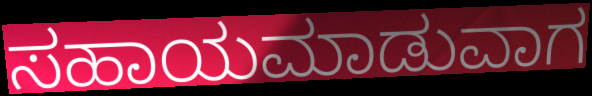
ಸಹಾಯಮಾಡುವಾಗ